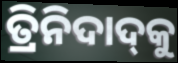
ତ୍ରିନିଦାଦ୍‍କୁ